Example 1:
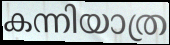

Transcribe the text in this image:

കന്നിയാത്ര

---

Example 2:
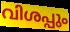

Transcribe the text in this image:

വിശപ്പും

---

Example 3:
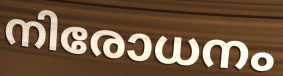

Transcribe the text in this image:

നിരോധനം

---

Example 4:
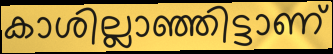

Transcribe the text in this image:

കാശില്ലാഞ്ഞിട്ടാണ്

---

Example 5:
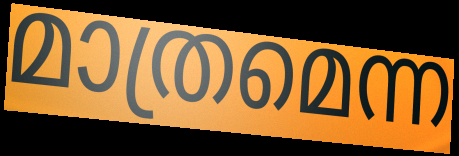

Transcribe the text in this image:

മാത്രമെന്ന